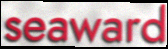
seaward